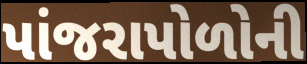
પાંજરાપોળોની